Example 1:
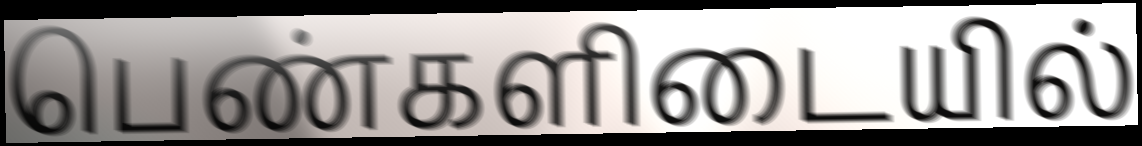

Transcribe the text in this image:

பெண்களிடையில்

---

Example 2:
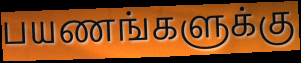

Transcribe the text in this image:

பயணங்களுக்கு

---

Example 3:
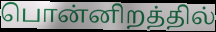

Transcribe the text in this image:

பொன்னிறத்தில்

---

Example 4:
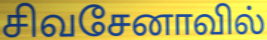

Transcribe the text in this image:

சிவசேனாவில்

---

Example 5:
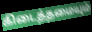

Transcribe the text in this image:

கிடைத்தமையும்